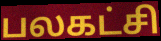
பலகட்சி